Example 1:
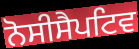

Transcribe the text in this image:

ਨੋਸੀਸੈਪਟਿਵ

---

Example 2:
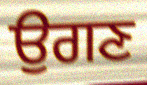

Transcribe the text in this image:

ਉਗਣ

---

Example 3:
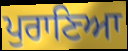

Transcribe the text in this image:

ਪੁਰਾਣਿਆ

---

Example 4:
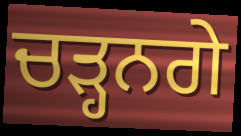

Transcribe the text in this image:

ਚੜ੍ਹਨਗੇ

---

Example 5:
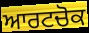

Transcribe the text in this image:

ਆਰਟਚੋਕ